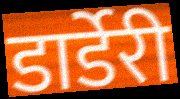
डार्डेरी